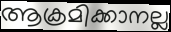
ആക്രമിക്കാനല്ല